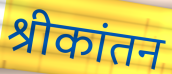
श्रीकांतन